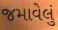
જમાવેલું